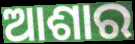
ଆଶାର